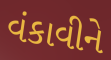
વંકાવીને